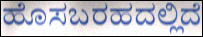
ಹೊಸಬರಹದಲ್ಲಿದೆ